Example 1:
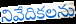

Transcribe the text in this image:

నివేదికలను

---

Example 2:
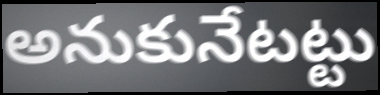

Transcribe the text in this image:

అనుకునేటట్టు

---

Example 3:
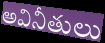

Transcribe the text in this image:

అవినీతులు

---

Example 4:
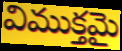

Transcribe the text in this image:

విముక్తమై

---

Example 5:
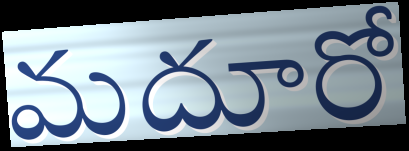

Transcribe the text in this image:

మదూరో